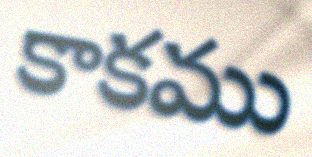
కాకము